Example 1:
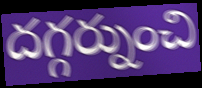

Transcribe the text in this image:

దగ్గర్నుంచి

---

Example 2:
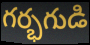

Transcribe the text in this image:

గర్భగుడి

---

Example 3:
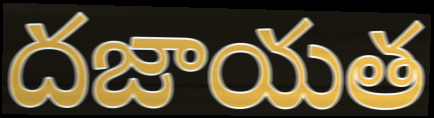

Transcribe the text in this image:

దజాయత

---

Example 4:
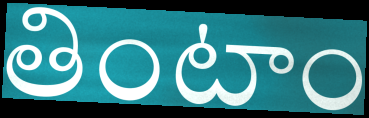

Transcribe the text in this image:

తింటాం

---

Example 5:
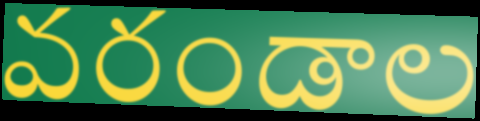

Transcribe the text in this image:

వరండాల